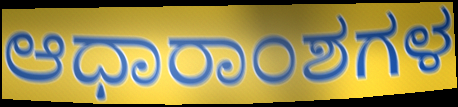
ಆಧಾರಾಂಶಗಳ